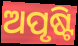
ଅପୃଷ୍ଟି